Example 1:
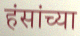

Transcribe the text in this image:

हंसांच्या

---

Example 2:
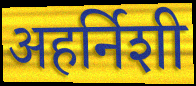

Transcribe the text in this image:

अहर्निशी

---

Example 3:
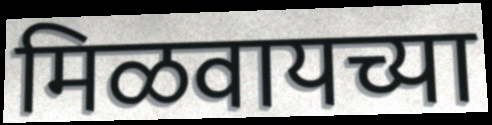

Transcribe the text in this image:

मिळवायच्या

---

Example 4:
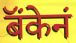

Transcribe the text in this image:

बॅंकेनं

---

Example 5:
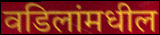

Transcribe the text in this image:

वडिलांमधील